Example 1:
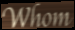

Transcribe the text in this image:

Whom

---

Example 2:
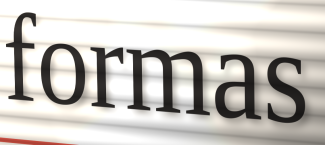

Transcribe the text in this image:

formas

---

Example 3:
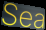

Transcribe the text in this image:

Sea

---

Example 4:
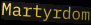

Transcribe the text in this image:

Martyrdom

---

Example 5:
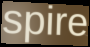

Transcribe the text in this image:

spire